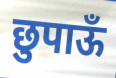
छुपाऊँ